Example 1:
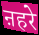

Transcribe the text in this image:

ऩहरे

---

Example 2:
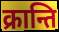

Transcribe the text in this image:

क्रान्ति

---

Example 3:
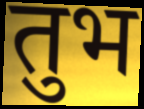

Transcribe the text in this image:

तुभ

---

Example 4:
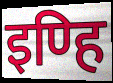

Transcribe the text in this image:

इण्हि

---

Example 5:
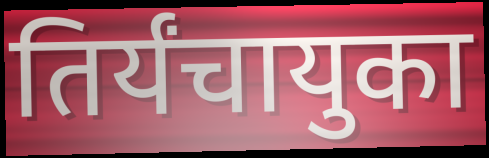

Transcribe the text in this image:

तिर्यंचायुका